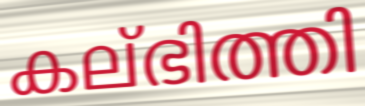
കല്ഭിത്തി